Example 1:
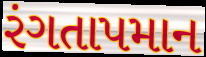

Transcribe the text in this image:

રંગતાપમાન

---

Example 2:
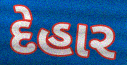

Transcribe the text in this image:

દેહાર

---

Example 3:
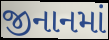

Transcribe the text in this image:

જીનાનમાં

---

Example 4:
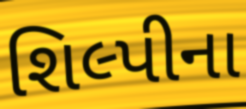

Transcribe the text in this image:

શિલ્પીના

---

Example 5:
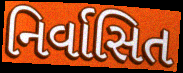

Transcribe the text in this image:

નિર્વાસિત